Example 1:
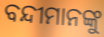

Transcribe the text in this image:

ବନ୍ଦୀମାନଙ୍କୁ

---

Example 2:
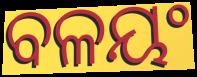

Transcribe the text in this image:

ବଳୟଂ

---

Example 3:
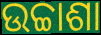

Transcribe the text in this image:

ଉଚ୍ଚାଶା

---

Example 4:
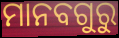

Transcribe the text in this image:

ମାନବଗୁରୁ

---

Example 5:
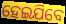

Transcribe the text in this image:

ହେଇଯିବେ